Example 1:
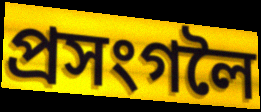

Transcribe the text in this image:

প্ৰসংগলৈ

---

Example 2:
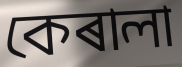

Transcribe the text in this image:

কেৰালা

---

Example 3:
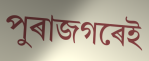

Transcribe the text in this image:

পুৰাজগৰেই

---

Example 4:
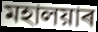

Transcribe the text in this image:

মহালয়াৰ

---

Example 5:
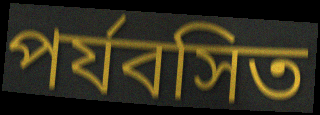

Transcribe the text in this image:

পৰ্যবসিত